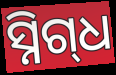
ସ୍ନିଗ୍‌ଧ